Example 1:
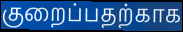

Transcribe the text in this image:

குறைப்பதற்காக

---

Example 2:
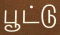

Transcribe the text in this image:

பூட்டு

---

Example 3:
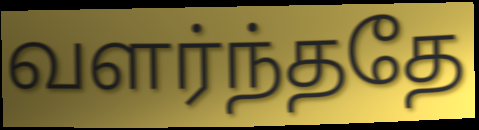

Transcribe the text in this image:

வளர்ந்ததே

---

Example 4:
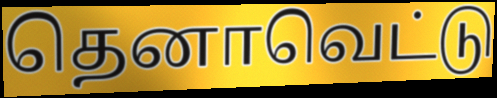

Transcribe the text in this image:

தெனாவெட்டு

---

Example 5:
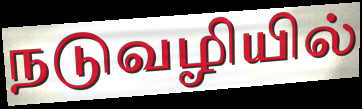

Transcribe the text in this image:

நடுவழியில்